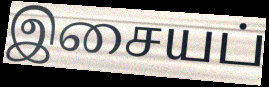
இசையப்